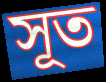
সূত